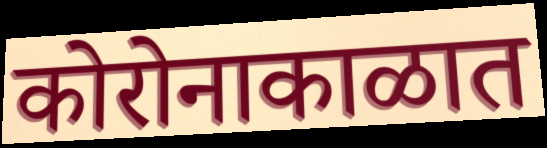
कोरोनाकाळात